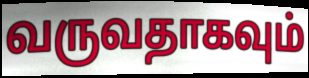
வருவதாகவும்